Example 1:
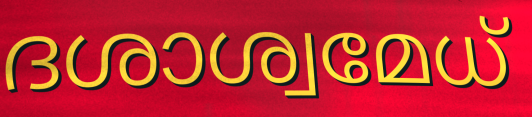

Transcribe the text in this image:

ദശാശ്വമേധ്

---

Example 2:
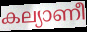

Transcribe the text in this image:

കല്യാണീ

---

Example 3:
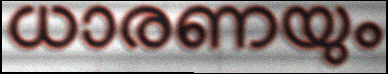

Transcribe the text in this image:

ധാരണയും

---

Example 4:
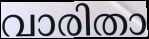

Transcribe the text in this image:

വാരിതാ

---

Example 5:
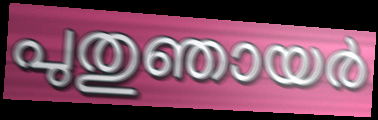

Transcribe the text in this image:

പുതുഞായർ